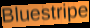
Bluestripe